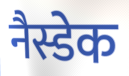
नैस्डेक